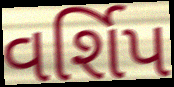
વર્શિપ